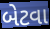
બેટવા